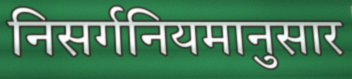
निसर्गनियमानुसार